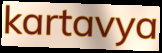
kartavya